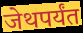
जेथपर्यंत